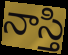
నాస్తి